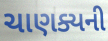
ચાણક્યની